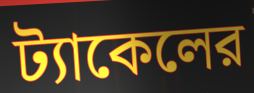
ট্যাকেলের